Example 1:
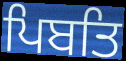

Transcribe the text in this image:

ਪਿਬਤਿ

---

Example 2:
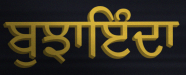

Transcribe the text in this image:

ਬੁਝਾਇੰਦਾ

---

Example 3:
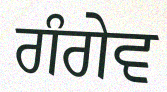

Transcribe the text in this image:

ਗੰਗੇਵ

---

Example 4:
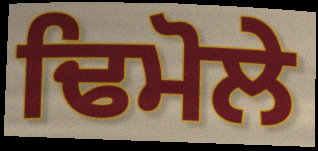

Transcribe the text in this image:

ਢਿਮੋਲੇ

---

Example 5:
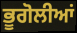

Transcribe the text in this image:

ਭੂਗੋਲੀਆਂ